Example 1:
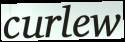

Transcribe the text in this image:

curlew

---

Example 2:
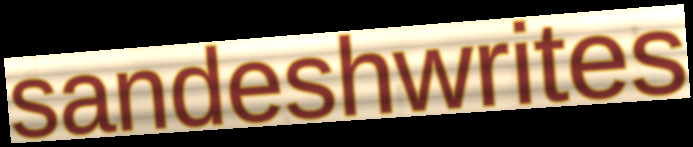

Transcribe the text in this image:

sandeshwrites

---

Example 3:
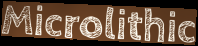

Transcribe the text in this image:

Microlithic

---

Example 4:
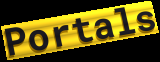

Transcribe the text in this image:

Portals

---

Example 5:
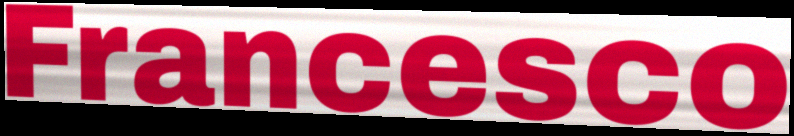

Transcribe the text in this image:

Francesco